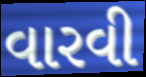
વારવી